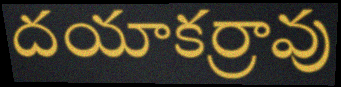
దయాకర్రావు